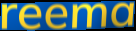
reema